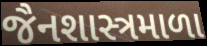
જૈનશાસ્ત્રમાળા